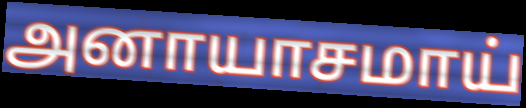
அனாயாசமாய்